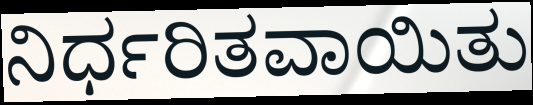
ನಿರ್ಧರಿತವಾಯಿತು